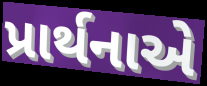
પ્રાર્થનાએ